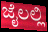
ಜೈಲಲ್ಲಿ